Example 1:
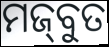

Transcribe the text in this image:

ମଜ୍‌ବୁତ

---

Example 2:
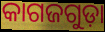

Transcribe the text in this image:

କାଗଜଗୁଡ଼ା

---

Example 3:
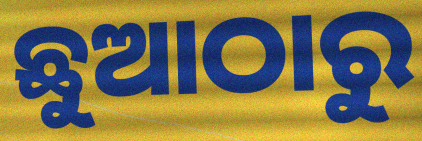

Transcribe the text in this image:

ଛୁଆଠାରୁ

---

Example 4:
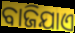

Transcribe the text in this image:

ବାଜିଯାଏ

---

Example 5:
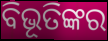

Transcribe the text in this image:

ବିଭୂତିଙ୍କର